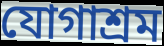
যোগাশ্রম